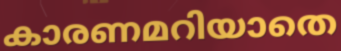
കാരണമറിയാതെ